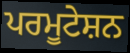
ਪਰਮੂਟੇਸ਼ਨ